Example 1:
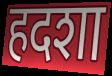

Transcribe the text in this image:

हदशा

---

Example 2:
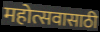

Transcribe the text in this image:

महोत्सवासाठी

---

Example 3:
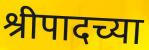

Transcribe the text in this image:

श्रीपादच्या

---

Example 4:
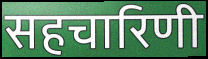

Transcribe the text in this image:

सहचारिणी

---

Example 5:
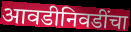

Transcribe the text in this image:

आवडीनिवडींचा